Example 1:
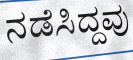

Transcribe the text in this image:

ನಡೆಸಿದ್ದವು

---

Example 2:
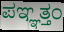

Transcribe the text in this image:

ಪಞ್ಞತ್ತಂ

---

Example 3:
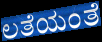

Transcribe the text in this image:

ಲತೆಯಂತೆ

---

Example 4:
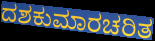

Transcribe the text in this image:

ದಶಕುಮಾರಚರಿತ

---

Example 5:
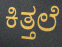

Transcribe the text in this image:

ಕಿತ್ತಲೆ